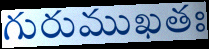
గురుముఖతః